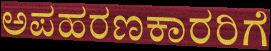
ಅಪಹರಣಕಾರರಿಗೆ